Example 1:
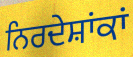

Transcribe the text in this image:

ਨਿਰਦੇਸ਼ਾਂਕਾਂ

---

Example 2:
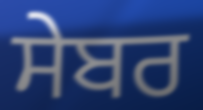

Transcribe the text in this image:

ਸੇਬਰ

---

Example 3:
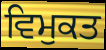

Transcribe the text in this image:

ਵਿਮੁਕਤ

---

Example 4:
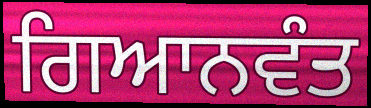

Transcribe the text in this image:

ਗਿਆਨਵੰਤ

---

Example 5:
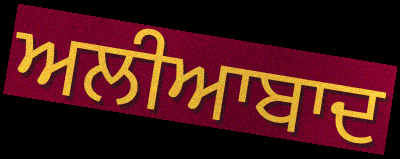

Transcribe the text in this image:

ਅਲੀਆਬਾਦ